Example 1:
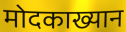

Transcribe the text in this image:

मोदकाख्यान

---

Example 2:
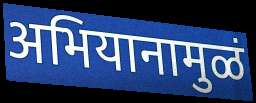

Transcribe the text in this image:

अभियानामुळं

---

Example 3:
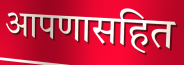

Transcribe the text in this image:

आपणासहित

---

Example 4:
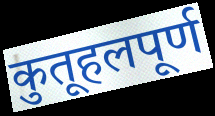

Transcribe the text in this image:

कुतूहलपूर्ण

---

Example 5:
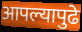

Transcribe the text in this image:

आपल्यापुढे